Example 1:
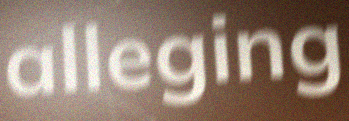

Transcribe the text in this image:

alleging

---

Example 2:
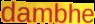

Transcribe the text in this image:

dambhe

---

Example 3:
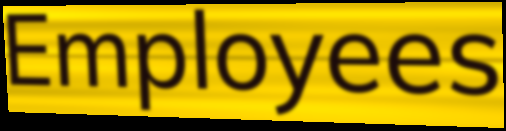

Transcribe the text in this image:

Employees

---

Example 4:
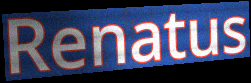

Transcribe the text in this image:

Renatus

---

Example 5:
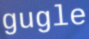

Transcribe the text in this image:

gugle